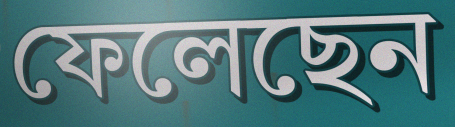
ফেলেছেন